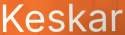
Keskar